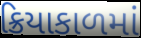
ક્રિયાકાળમાં